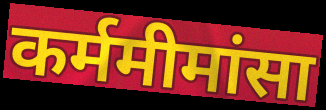
कर्ममीमांसा